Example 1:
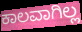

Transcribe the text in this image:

ಕಾಲವಾಗಿಲ್ಲ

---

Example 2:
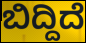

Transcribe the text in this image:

ಬಿದ್ದಿದೆ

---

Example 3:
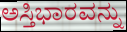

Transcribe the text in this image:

ಅಸ್ತಿಭಾರವನ್ನು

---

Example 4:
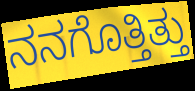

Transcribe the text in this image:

ನನಗೊತ್ತಿತ್ತು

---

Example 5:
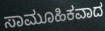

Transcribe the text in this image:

ಸಾಮೂಹಿಕವಾದ